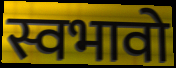
स्वभावो